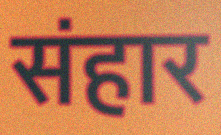
संहार